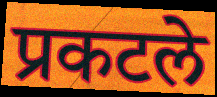
प्रकटले